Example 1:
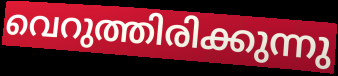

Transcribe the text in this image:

വെറുത്തിരിക്കുന്നു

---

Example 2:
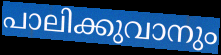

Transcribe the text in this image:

പാലിക്കുവാനും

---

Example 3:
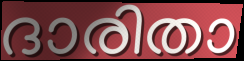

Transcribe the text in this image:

ദാരിതാ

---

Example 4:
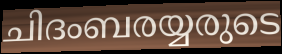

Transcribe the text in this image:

ചിദംബരയ്യരുടെ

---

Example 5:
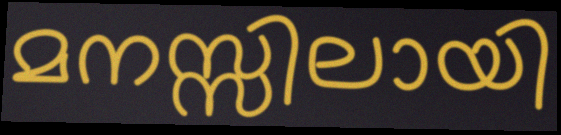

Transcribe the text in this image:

മനസ്സിലായി